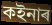
কইনাৰ